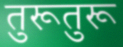
तुरूतुरू